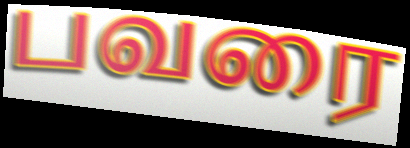
பவரை